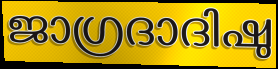
ജാഗ്രദാദിഷു